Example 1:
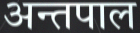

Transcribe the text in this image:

अन्तपाल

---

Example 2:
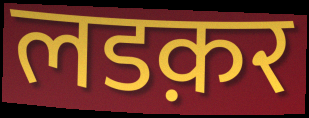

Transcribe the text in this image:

लडक़र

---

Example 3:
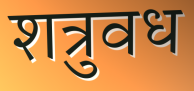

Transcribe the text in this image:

शत्रुवध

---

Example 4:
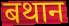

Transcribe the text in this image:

बथान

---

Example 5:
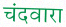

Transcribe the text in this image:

चंदवारा